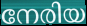
നേരിയ